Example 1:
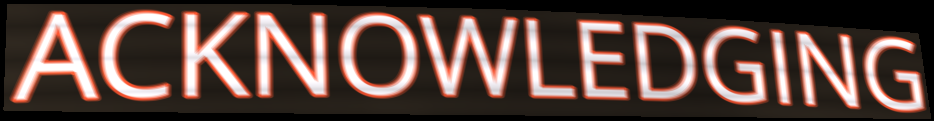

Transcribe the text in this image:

ACKNOWLEDGING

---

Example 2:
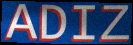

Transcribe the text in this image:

ADIZ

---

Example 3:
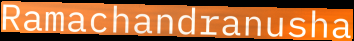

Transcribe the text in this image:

Ramachandranusha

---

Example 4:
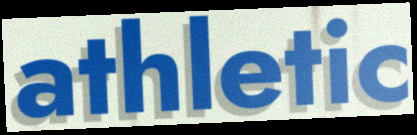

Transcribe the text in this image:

athletic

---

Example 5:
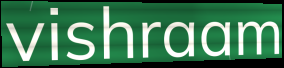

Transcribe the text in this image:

vishraam